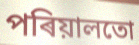
পৰিয়ালতো